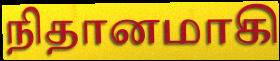
நிதானமாகி